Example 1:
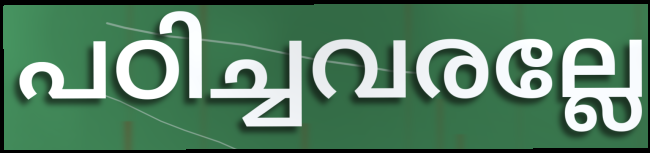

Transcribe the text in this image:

പഠിച്ചവരല്ലേ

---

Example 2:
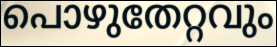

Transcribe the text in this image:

പൊഴുതേറ്റവും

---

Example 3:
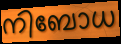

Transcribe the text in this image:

നിബോധ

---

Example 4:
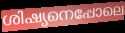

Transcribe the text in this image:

ശിഷ്യനെപ്പോലെ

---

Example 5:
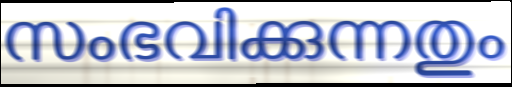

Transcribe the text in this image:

സംഭവിക്കുന്നതും